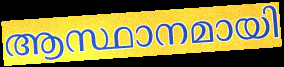
ആസ്ഥാനമായി